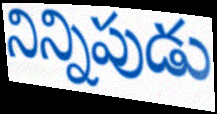
నిన్నిపుడు